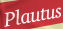
Plautus